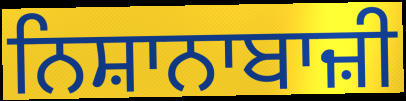
ਨਿਸ਼ਾਨਾਬਾਜ਼ੀ